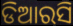
ଡିଆରସି